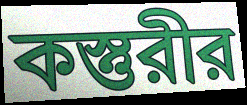
কস্তুরীর